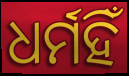
ଧର୍ମହିଁ